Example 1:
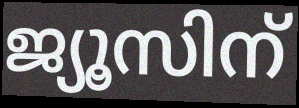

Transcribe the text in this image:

ജ്യൂസിന്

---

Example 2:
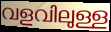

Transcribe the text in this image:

വളവിലുള്ള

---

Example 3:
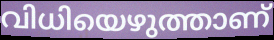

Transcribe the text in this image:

വിധിയെഴുത്താണ്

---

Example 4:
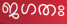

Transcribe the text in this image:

ജഗതഃ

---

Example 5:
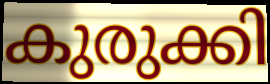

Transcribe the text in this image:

കുരുക്കി